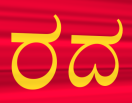
ರದ